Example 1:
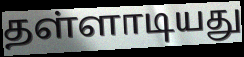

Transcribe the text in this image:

தள்ளாடியது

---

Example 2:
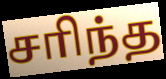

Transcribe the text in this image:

சரிந்த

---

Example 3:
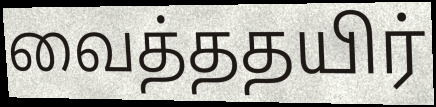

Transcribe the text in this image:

வைத்ததயிர்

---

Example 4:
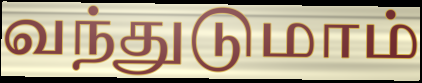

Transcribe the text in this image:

வந்துடுமாம்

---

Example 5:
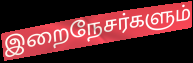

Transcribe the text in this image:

இறைநேசர்களும்